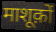
माशूक़ों